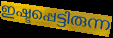
ഇഷ്ടപ്പെട്ടിരുന്ന